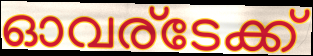
ഓവര്ടേക്ക്